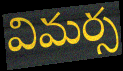
విమర్స